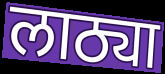
लाठ्या